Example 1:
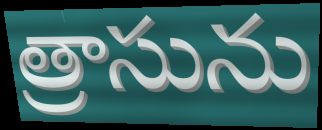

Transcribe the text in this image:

త్రాసును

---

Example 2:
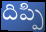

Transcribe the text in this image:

దిప్పి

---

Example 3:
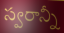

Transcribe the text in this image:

స్వరాన్నీ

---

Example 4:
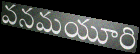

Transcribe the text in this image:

వనమయూరి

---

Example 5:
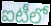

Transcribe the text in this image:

ఐటీలో